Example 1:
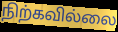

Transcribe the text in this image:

நிற்கவில்லை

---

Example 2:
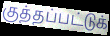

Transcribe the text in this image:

குத்தப்பட்டுக்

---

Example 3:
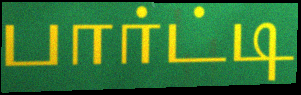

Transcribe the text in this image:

பார்ட்டி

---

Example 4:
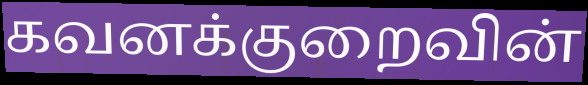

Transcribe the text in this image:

கவனக்குறைவின்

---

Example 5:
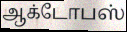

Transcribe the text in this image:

ஆக்டோபஸ்